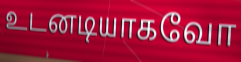
உடனடியாகவோ